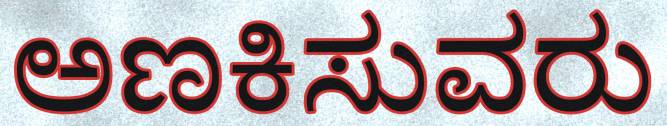
ಅಣಕಿಸುವರು